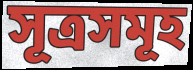
সূত্ৰসমূহ